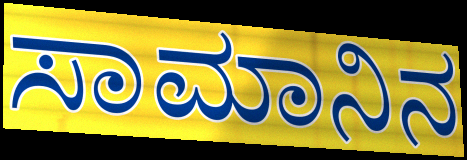
ಸಾಮಾನಿನ